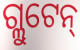
ଗ୍ଲୁଟେନ୍